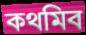
কথমিব